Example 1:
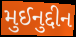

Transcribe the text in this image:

મુઈનુદ્દીન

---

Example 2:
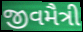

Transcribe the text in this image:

જીવમૈત્રી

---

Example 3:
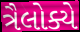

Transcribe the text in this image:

ત્રૈલોક્યે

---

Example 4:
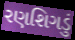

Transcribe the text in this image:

રણશિગડું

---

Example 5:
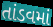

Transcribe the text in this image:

તાંડવમાં